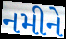
નમીને